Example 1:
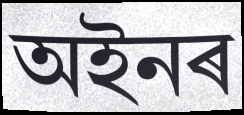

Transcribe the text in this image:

অইনৰ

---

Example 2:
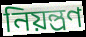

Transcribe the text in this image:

নিয়ন্ত্ৰণ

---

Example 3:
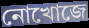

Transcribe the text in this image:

নোখোজে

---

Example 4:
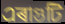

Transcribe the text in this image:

এৰাগুটি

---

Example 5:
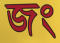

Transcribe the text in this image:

জং